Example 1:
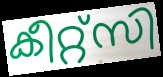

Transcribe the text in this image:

കീറ്റ്സി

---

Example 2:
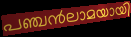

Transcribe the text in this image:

പഞ്ചൻലാമയായി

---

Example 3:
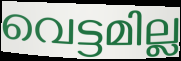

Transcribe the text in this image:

വെട്ടമില്ല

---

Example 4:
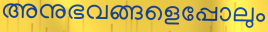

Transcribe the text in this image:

അനുഭവങ്ങളെപ്പോലും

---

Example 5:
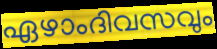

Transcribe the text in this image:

ഏഴാംദിവസവും